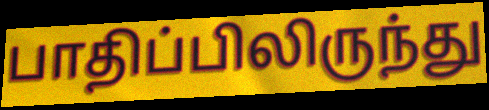
பாதிப்பிலிருந்து